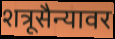
शत्रूसैन्यावर